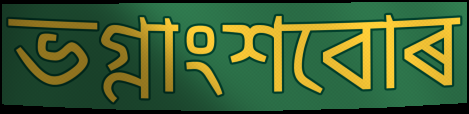
ভগ্নাংশবোৰ